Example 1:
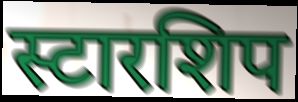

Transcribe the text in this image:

स्टारशिप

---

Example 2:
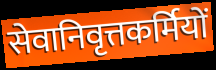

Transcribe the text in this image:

सेवानिवृत्तकर्मियों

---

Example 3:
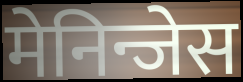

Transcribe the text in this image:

मेनिन्जेस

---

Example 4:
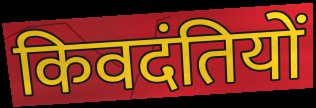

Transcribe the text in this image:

किवदंतियों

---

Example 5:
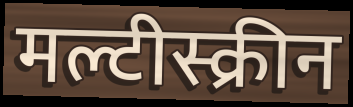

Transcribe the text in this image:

मल्टीस्क्रीन